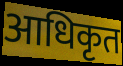
आधिकृत